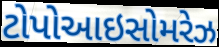
ટોપોઆઇસોમરેઝ